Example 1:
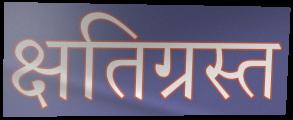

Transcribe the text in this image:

क्षतिग्रस्त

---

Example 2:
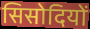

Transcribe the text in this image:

सिसोदियों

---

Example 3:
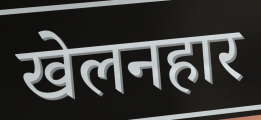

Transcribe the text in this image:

खेलनहार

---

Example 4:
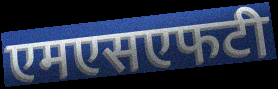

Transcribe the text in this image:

एमएसएफटी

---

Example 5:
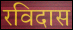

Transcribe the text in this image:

रविदास